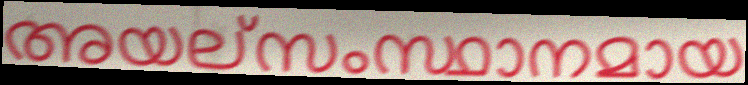
അയല്സംസ്ഥാനമായ